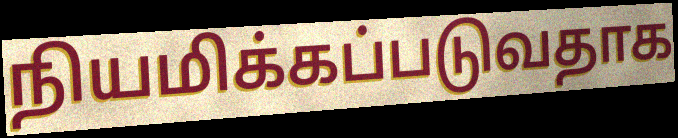
நியமிக்கப்படுவதாக